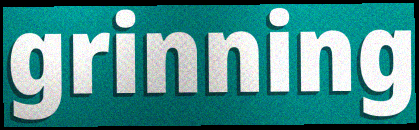
grinning